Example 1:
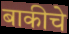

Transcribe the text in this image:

बाकीचे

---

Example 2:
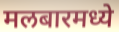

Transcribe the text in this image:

मलबारमध्ये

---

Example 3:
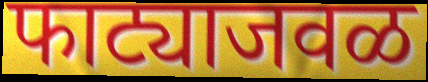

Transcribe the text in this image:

फाट्याजवळ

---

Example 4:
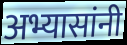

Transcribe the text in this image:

अभ्यासांनी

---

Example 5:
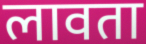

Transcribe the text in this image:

लावता